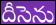
దీసెను